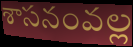
శాసనంవల్ల